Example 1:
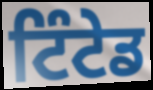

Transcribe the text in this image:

ਟਿੰਟੇਡ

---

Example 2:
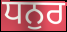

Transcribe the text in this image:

ਧਨੁਰ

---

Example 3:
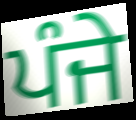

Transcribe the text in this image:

ਪੰਜੇ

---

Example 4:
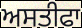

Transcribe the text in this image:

ਅਸਤੀਫਾ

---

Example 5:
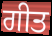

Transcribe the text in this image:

ਗੀਤ